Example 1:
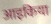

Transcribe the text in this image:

आइकिया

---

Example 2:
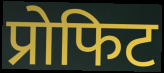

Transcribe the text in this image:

प्रोफिट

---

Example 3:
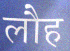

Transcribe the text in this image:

लौह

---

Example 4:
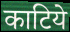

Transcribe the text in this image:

काटिये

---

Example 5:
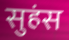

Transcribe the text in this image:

सुहंस